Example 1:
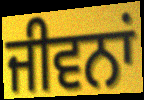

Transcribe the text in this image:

ਜੀਵਨਾਂ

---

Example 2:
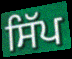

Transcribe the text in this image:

ਸਿੱਪ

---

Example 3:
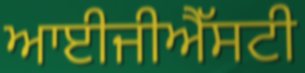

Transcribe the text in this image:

ਆਈਜੀਐੱਸਟੀ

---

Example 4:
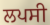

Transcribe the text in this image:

ਲਪਸੀ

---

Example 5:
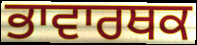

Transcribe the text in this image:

ਭਾਵਾਰਥਕ